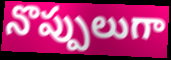
నొప్పులుగా